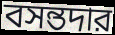
বসন্তদার